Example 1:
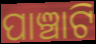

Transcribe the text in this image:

ପାଞ୍ଚାଟି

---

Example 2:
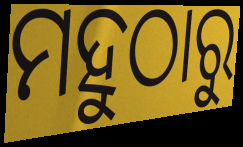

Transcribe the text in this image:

ମହୁଠାରୁ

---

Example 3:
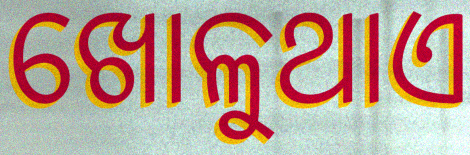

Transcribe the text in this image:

ଖୋଳୁଥାଏ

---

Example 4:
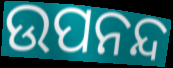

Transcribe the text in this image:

ଉପନନ୍ଦ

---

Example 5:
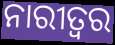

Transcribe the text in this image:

ନାରୀତ୍ୱର